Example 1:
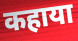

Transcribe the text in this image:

कहाया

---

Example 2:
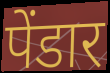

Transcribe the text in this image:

पेंडार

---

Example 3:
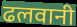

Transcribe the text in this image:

ढलवानी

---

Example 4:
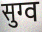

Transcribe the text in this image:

सुग्व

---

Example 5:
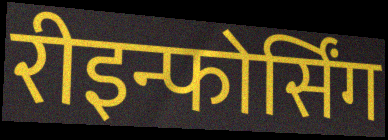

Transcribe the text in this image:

रीइन्फोर्सिंग